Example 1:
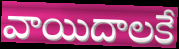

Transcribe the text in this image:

వాయిదాలకే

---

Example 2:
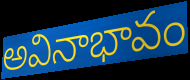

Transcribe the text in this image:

అవినాభావం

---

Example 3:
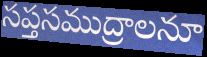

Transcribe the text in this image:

సప్తసముద్రాలనూ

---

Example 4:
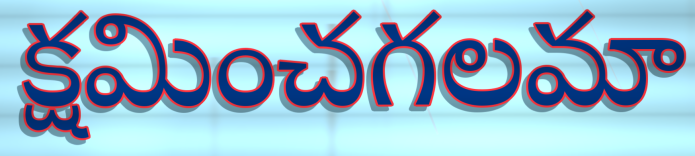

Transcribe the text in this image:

క్షమించగలమా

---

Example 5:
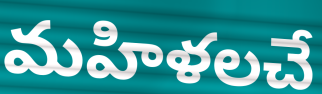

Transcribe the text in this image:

మహిళలచే